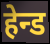
हेन्ड